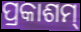
ପ୍ରକାଶମ୍